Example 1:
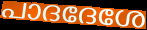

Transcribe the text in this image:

പാദദേശേ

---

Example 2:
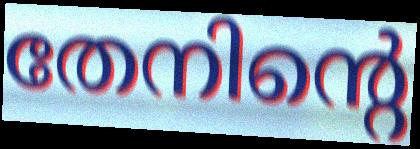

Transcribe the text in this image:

തേനിന്റെ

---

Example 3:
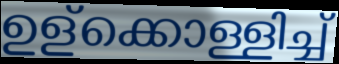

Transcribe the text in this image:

ഉള്ക്കൊള്ളിച്ച്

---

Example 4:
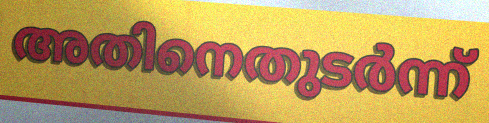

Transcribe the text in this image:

അതിനെതുടർന്ന്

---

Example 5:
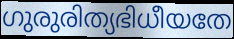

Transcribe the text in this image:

ഗുരുരിത്യഭിധീയതേ